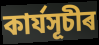
কাৰ্যসূচীৰ